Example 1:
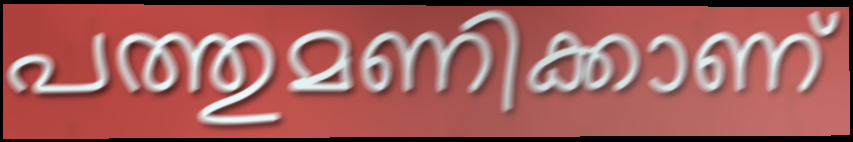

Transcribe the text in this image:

പത്തുമണിക്കാണ്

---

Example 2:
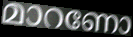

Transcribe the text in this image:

മാറണോ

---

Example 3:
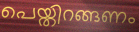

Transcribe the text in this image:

പെയ്തിറങ്ങണം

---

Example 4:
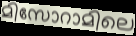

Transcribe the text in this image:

മിസോറാമിലെ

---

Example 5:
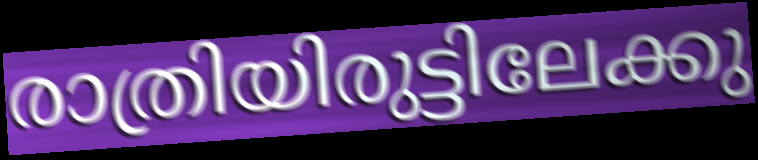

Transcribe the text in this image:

രാത്രിയിരുട്ടിലേക്കു